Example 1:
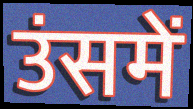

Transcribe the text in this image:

उंसमें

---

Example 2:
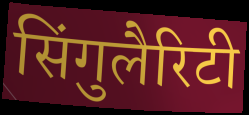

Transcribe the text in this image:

सिंगुलैरिटी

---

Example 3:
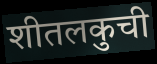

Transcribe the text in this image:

शीतलकुची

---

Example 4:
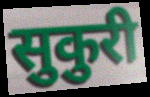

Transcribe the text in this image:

सुकुरी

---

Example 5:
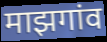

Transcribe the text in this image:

माझगांव